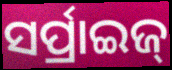
ସର୍ପ୍ରାଇଜ୍